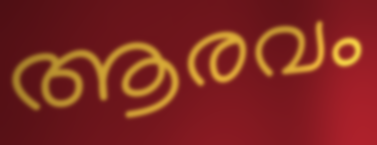
ആരവം